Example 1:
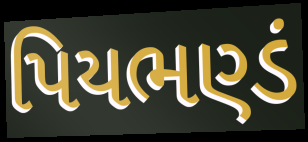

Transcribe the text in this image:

પિયભણ્ડં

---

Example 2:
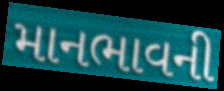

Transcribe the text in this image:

માનભાવની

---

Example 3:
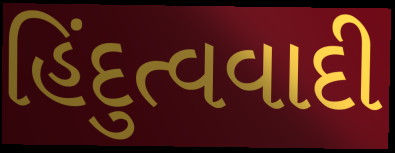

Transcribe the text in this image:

હિંદુત્વવાદી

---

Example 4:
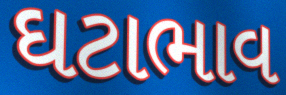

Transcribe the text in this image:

ઘટાભાવ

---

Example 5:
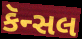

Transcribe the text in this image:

કૅન્સલ